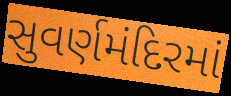
સુવર્ણમંદિરમાં